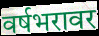
वर्षभरावर